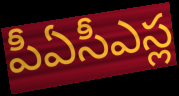
పీఏసీఎస్ల